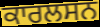
ਕਾਰਲਸਨ